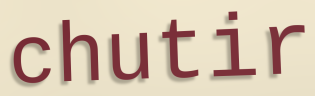
chutir